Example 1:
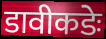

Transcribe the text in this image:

डावीकडेः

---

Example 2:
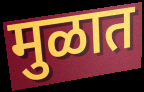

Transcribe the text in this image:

मुळात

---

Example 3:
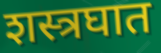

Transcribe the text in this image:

शस्त्रघात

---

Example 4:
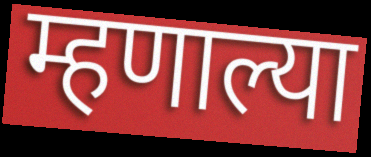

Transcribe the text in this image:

म्हणाल्या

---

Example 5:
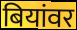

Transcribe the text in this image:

बियांवर